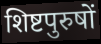
शिष्टपुरुषों